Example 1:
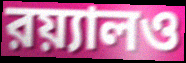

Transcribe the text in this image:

রয়্যালও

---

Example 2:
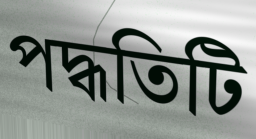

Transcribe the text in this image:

পদ্ধতিটি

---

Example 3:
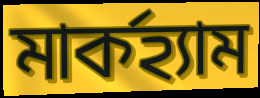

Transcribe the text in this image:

মার্কহ্যাম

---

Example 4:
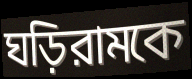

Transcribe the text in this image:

ঘড়িরামকে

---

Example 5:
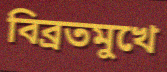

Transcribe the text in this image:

বিব্রতমুখে